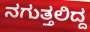
ನಗುತ್ತಲಿದ್ದ